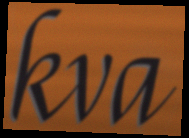
kva